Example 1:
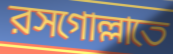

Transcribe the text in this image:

রসগোল্লাতে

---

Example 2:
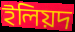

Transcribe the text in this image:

ইলিয়দ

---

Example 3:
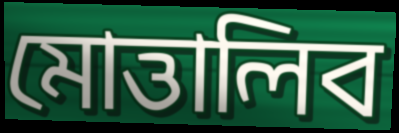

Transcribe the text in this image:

মোত্তালিব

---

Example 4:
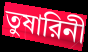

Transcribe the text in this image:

তুষারিনী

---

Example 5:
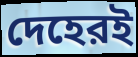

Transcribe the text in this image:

দেহেরই